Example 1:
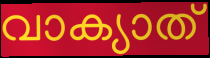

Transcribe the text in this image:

വാക്യാത്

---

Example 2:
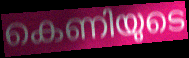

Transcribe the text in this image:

കെണിയുടെ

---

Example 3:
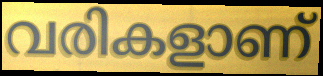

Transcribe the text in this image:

വരികളാണ്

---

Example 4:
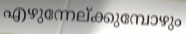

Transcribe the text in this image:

എഴുന്നേല്ക്കുമ്പോഴും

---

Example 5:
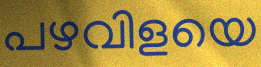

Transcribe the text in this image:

പഴവിളയെ